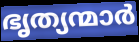
ഭൃത്യന്മാർ